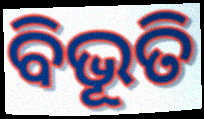
ବିଭୂତି